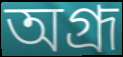
অগ্রূ